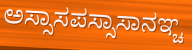
ಅಸ್ಸಾಸಪಸ್ಸಾಸಾನಞ್ಚ